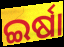
ଇର୍ଷା